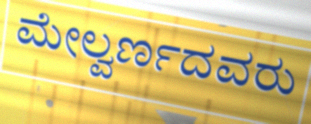
ಮೇಲ್ವರ್ಣದವರು